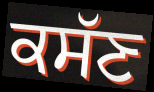
ਕਸੱਣ